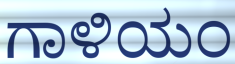
ಗಾಳಿಯಂ